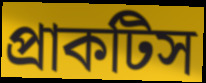
প্রাকটিস